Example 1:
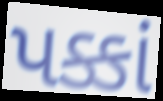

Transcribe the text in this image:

પક્કાં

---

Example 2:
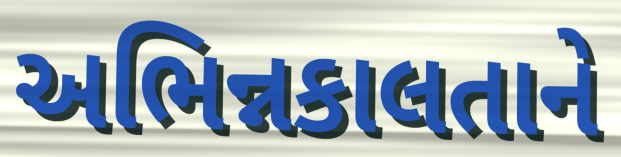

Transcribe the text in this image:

અભિન્નકાલતાને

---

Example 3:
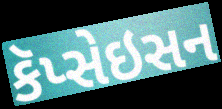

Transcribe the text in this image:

કૅપ્સેઇસન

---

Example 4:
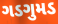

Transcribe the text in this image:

ગડગુમડ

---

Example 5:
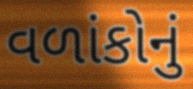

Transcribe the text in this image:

વળાંકોનું